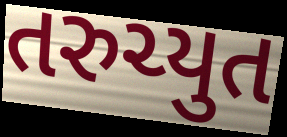
તરુચ્યુત